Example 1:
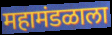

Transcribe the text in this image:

महामंडळाला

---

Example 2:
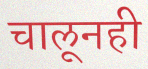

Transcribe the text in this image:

चालूनही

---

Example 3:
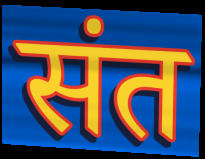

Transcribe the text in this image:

संत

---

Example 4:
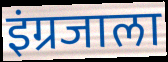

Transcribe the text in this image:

इंग्रजाला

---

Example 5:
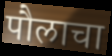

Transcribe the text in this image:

पौलाचा